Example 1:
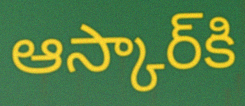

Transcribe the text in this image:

ఆస్కార్‌కి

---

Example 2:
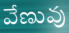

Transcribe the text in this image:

వేణువు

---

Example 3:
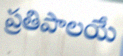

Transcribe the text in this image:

ప్రతిపాలయే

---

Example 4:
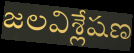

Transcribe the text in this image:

జలవిశ్లేషణ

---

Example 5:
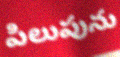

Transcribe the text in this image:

పిలుపును